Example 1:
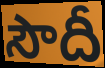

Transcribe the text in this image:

సౌదీ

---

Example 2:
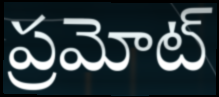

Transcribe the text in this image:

ప్రమోట్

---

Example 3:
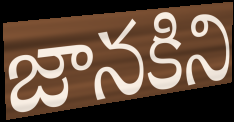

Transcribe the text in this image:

జానకిని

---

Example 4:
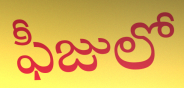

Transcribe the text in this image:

ఫీజులో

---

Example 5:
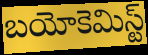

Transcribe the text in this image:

బయోకెమిస్ట్